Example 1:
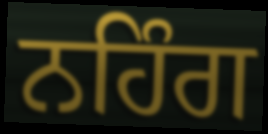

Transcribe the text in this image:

ਨਹਿੰਗ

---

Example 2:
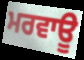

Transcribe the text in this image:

ਮਰਵਾਊ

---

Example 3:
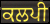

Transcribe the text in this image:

ਕਲਪੀ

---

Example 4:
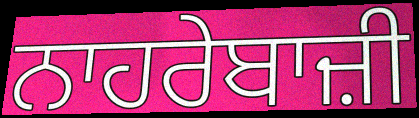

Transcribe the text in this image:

ਨਾਹਰੇਬਾਜ਼ੀ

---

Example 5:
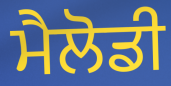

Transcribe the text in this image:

ਮੈਲੋਡੀ